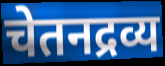
चेतनद्रव्य